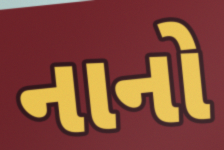
નાનો